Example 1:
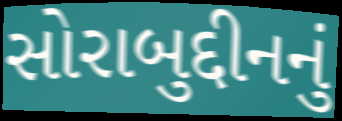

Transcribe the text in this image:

સોરાબુદ્દીનનું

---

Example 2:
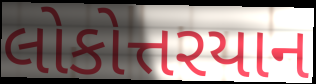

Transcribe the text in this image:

લોકોત્તરયાન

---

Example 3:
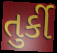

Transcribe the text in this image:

તુર્કી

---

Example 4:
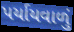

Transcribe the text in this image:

પર્યાયવાળું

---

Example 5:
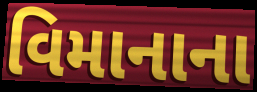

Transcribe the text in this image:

વિમાનાના